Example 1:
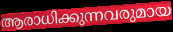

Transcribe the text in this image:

ആരാധിക്കുന്നവരുമായ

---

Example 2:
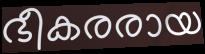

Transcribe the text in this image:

ഭീകരരായ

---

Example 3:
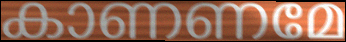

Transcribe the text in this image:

കാണണമേ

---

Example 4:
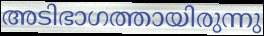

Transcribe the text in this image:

അടിഭാഗത്തായിരുന്നു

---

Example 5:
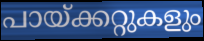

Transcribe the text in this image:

പായ്ക്കറ്റുകളും